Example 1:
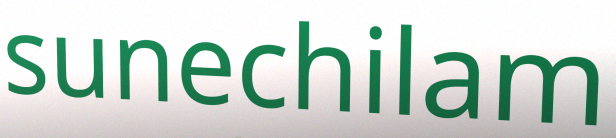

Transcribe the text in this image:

sunechilam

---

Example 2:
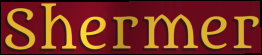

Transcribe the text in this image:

Shermer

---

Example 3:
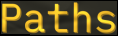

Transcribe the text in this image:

Paths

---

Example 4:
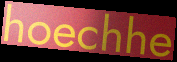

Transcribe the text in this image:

hoechhe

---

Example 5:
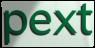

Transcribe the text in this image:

pext